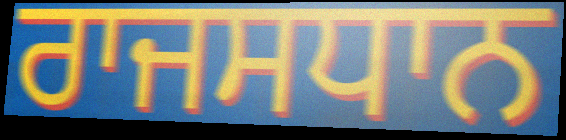
ਰਾਜਸਧਾਨ